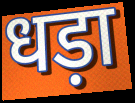
धड़ा